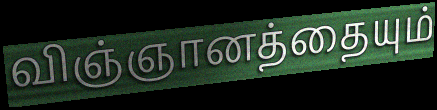
விஞ்ஞானத்தையும்